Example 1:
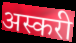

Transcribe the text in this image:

अस्करी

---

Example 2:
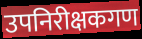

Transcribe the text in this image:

उपनिरीक्षकगण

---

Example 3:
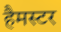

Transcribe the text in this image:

हैमस्टर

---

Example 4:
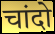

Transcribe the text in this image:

चांदो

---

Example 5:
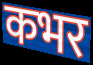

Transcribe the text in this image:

कभर